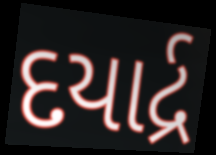
દયાર્દ્ર